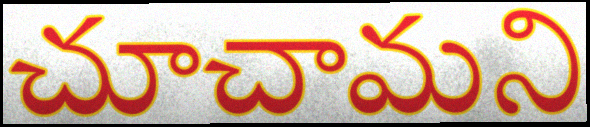
చూచామని